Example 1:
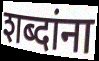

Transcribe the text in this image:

शब्दांना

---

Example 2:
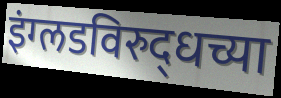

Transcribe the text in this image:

इंग्लडविरुद्धच्या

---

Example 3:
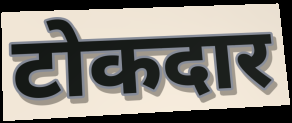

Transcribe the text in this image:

टोकदार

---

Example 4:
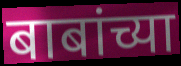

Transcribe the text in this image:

बाबांच्या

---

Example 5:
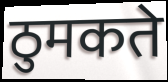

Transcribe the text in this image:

ठुमकते